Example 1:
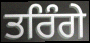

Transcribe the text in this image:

ਤਰਿੰਗੇ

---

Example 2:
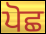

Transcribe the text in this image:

ਪੋਛ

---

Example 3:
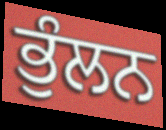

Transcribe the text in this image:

ਭੁੰਲਨ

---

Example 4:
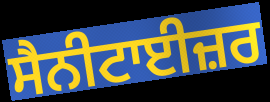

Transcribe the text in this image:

ਸੈਨੀਟਾਈਜ਼ਰ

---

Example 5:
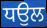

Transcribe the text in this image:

ਧਉਲ